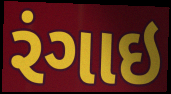
રંગાઇ